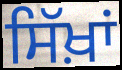
ਸਿੱਖ਼ਾਂ